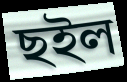
ছইল